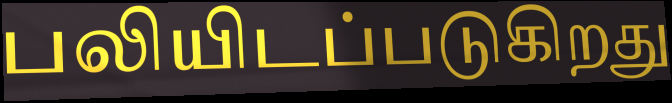
பலியிடப்படுகிறது